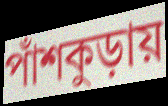
পাঁশকুড়ায়